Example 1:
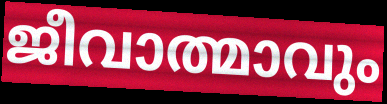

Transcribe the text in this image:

ജീവാത്മാവും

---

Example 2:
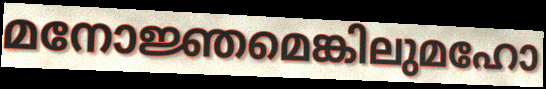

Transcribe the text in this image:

മനോജ്ഞമെങ്കിലുമഹോ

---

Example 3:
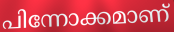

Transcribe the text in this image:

പിന്നോക്കമാണ്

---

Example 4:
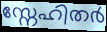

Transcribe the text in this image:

സ്നേഹിതർ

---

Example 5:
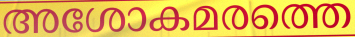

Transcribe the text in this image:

അശോകമരത്തെ